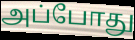
அப்போது